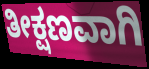
ತೀಕ್ಷಣವಾಗಿ